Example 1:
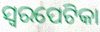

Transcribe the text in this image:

ସ୍ୱରପେଟିକା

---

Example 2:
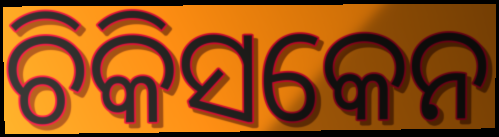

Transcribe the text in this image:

ଚିକିସକେନ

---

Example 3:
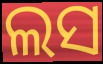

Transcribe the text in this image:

ଲସ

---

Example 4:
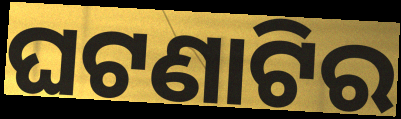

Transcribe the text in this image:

ଘଟଣାଟିର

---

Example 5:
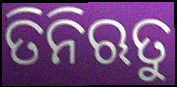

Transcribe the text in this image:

ତିନିଋତୁ